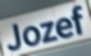
Jozef